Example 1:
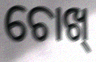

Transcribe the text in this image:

ଚୋଖ୍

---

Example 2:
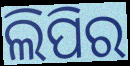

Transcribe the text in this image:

ଲିପିର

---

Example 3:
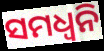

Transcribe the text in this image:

ସମଧ୍ୱନି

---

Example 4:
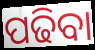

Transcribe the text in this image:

ପଢିବା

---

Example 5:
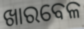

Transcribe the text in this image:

ଖାରବେଳ